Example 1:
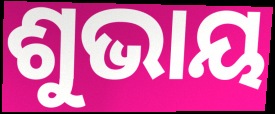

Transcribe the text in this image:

ଶୁଭାୟ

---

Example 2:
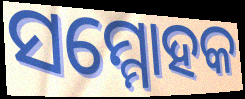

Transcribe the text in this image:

ସମ୍ମୋହକ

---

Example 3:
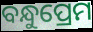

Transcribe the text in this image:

ବନ୍ଧୁପ୍ରେମ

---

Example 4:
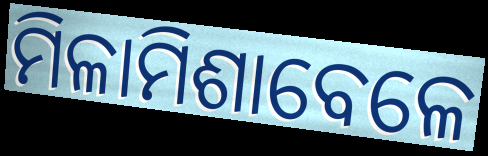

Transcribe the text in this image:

ମିଳାମିଶାବେଳେ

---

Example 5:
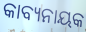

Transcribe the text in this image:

କାବ୍ୟନାୟକ